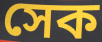
সেক